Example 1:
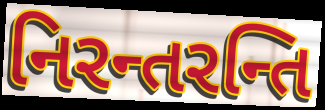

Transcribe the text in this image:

નિરન્તરન્તિ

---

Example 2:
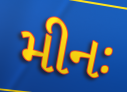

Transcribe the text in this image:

મીનઃ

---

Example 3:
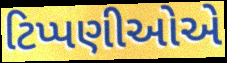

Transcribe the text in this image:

ટિપ્પણીઓએ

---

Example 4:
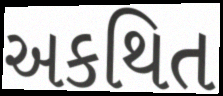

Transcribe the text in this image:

અકથિત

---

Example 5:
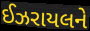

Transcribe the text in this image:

ઈઝરાયલને